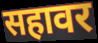
सहावर